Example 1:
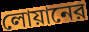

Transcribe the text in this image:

লোয়ানের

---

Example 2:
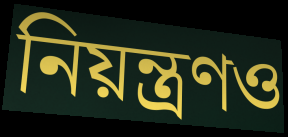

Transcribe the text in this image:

নিয়ন্ত্রণও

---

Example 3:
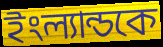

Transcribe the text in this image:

ইংল্যান্ডকে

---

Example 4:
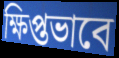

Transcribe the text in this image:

ক্ষিপ্তভাবে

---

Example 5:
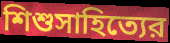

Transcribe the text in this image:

শিশুসাহিত্যের